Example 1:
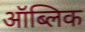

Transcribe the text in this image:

ऑब्लिक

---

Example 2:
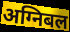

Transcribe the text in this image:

अग्निबल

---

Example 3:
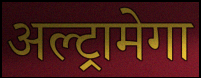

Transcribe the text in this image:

अल्ट्रामेगा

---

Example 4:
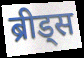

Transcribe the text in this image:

ब्रीड्स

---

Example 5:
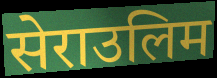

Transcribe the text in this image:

सेराउलिम